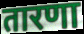
तारणा